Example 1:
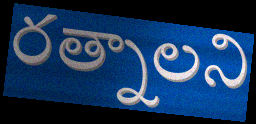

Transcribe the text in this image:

రత్నాలని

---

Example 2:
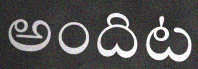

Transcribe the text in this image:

అందిట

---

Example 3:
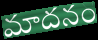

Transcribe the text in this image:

మాదనం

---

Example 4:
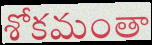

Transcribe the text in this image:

శోకమంతా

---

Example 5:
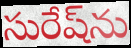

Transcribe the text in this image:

సురేష్‌ను